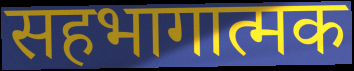
सहभागात्मक